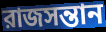
রাজসন্তান